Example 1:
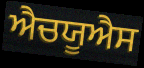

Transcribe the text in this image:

ਐਚਯੂਐਸ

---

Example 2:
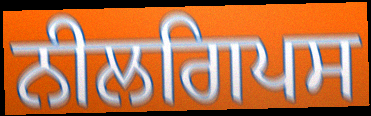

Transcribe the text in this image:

ਨੀਲਗਿਪਸ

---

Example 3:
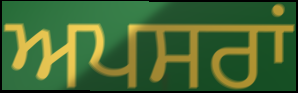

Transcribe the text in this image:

ਅਪਸਰਾਂ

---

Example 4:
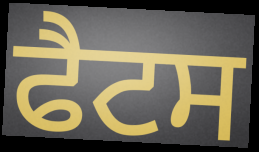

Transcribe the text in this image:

ਫੈਟਸ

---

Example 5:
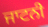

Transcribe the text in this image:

ਜਾਟਨੀ